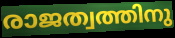
രാജത്വത്തിനു